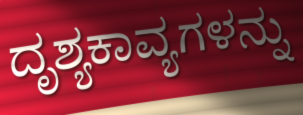
ದೃಶ್ಯಕಾವ್ಯಗಳನ್ನು